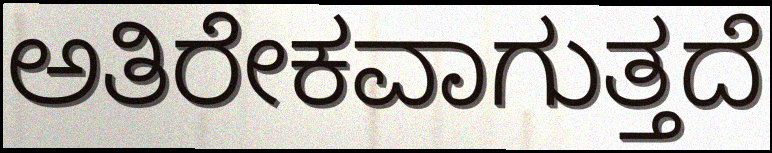
ಅತಿರೇಕವಾಗುತ್ತದೆ